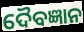
ଦୈବଜ୍ଞାନ